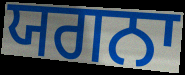
ਯਗਨਾ